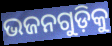
ଭଜନଗୁଡ଼ିକୁ